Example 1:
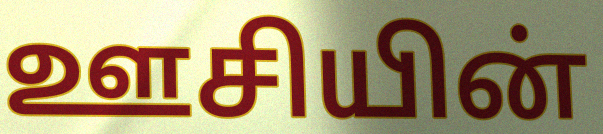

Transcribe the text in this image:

ஊசியின்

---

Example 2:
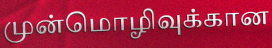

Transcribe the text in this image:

முன்மொழிவுக்கான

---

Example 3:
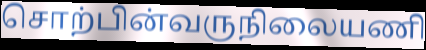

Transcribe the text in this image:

சொற்பின்வருநிலையணி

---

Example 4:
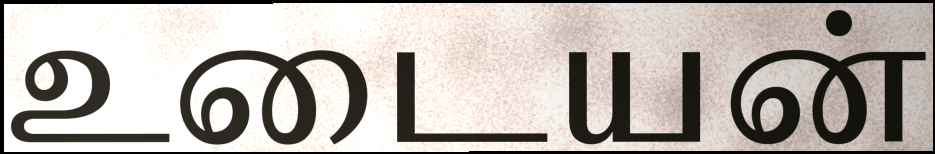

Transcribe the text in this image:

உடையன்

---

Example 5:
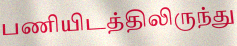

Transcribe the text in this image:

பணியிடத்திலிருந்து